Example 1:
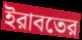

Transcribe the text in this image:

ইরাবতের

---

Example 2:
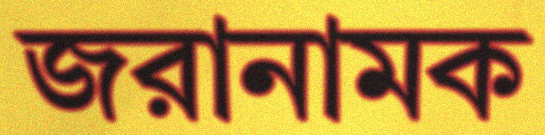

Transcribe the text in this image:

জরানামক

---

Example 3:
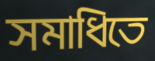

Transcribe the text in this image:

সমাধিতে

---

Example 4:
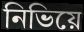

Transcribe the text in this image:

নিভিয়ে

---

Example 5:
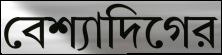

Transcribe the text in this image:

বেশ্যাদিগের